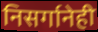
निसर्गानेही